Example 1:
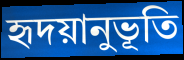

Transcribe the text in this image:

হৃদয়ানুভূতি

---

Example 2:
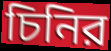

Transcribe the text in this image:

চিনির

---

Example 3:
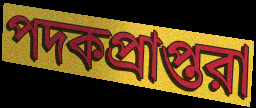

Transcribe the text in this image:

পদকপ্রাপ্তরা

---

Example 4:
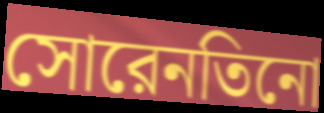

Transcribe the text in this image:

সোরেনতিনো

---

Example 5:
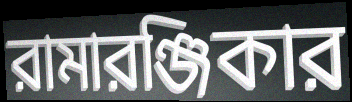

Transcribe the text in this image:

রামারঞ্জিকার